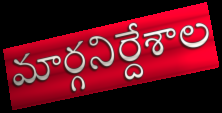
మార్గనిర్దేశాల